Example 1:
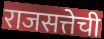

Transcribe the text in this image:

राजसत्तेची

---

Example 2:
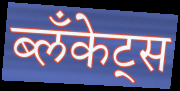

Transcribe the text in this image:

ब्लॅंकेट्स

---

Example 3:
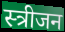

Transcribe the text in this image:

स्त्रीजन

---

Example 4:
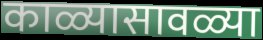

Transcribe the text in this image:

काळ्यासावळ्या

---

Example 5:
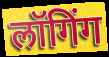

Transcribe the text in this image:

लॉगिंग